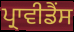
ਪ੍ਰਾਵੀਡੈਂਸ